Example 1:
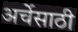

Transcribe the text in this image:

अर्चेसाठी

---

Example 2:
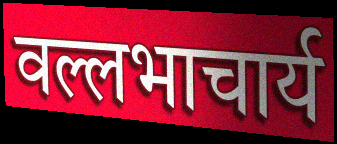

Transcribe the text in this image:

वल्लभाचार्य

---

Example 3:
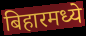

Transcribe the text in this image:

बिहारमध्ये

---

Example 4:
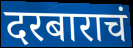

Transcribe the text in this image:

दरबाराचं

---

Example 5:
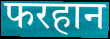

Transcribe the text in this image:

फरहान